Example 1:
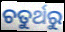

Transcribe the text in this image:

ଚତୁର୍ଥରୁ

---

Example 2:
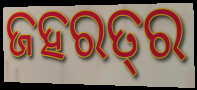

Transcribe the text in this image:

ଜହରତ୍‍ର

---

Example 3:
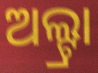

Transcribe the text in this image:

ଅଲ୍ଟ୍ରା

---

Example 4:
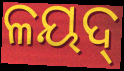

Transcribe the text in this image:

ଳୟଦ୍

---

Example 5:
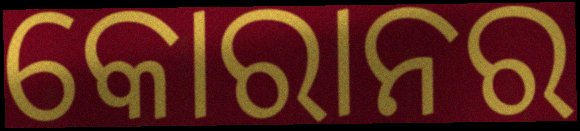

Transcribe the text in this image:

କୋରାନର